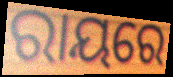
ରାୟରେ